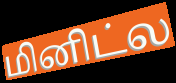
மினிட்ல